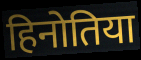
हिनोतिया